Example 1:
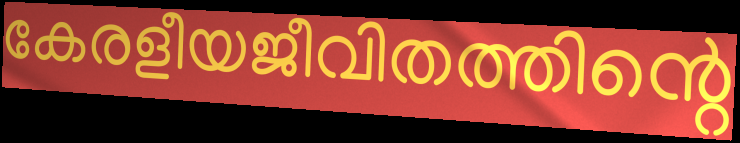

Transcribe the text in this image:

കേരളീയജീവിതത്തിന്റെ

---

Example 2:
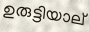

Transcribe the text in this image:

ഉരുട്ടിയാല്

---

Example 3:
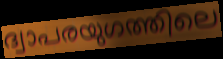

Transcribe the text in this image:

ദ്വാപരയുഗത്തിലെ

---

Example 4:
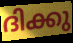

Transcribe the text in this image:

ദിക്കു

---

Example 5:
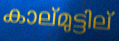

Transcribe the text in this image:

കാല്മുട്ടില്